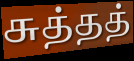
சுத்தத்